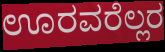
ಊರವರೆಲ್ಲರ